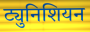
ट्युनिशियन